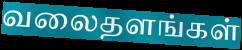
வலைதளங்கள்